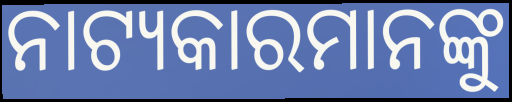
ନାଟ୍ଯକାରମାନଙ୍କୁ